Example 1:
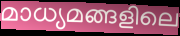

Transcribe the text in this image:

മാധ്യമങ്ങളിലെ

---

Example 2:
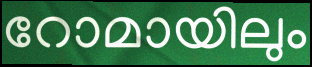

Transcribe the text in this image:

റോമായിലും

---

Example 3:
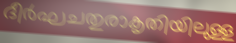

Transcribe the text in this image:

ദീർഘചതുരാകൃതിയിലുള്ള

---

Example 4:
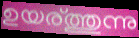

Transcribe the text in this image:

ഉയര്ത്തുന്നു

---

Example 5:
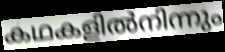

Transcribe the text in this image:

കഥകളിൽനിന്നും